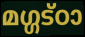
മഗ്ഗട്ഠാ